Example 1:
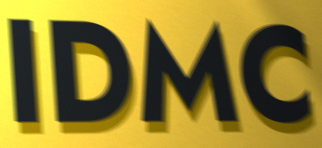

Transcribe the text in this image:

IDMC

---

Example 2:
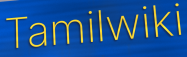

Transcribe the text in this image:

Tamilwiki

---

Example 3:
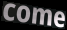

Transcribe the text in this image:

come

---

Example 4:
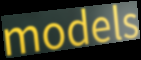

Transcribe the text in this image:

models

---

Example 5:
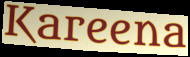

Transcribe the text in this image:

Kareena